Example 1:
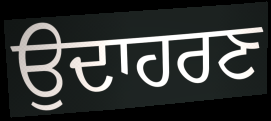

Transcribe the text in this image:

ਉਦਾਹਰਣ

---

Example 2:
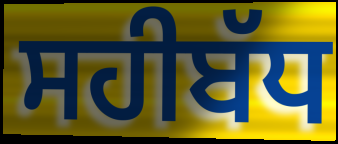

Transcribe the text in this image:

ਸਹੀਬੱਧ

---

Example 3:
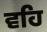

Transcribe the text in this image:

ਵਹਿ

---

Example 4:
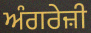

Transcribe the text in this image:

ਅੰਗਰੇਜ਼ੀ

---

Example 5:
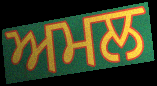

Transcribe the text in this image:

ਅਮਲ